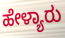
ಹೇಳ್ಯಾರು